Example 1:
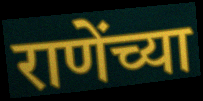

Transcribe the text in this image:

राणेंच्या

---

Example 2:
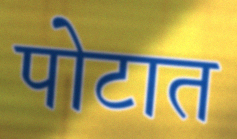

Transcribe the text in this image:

पोटात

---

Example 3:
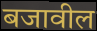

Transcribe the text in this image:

बजावील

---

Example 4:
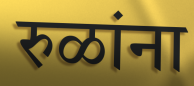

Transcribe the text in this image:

रुळांना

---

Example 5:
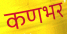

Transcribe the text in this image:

कणभर